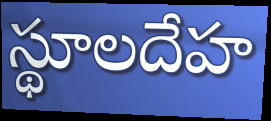
స్థూలదేహ